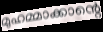
മുഹമ്മാക്കാന്റെ